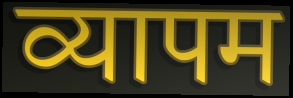
व्यापम